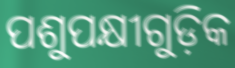
ପଶୁପକ୍ଷୀଗୁଡ଼ିକ